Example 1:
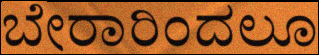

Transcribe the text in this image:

ಬೇರಾರಿಂದಲೂ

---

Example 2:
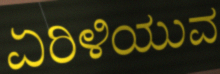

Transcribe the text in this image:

ಏರಿಳಿಯುವ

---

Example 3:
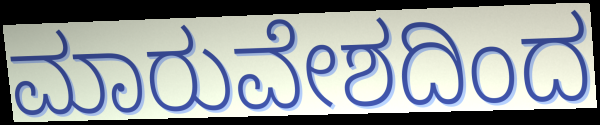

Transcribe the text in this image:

ಮಾರುವೇಶದಿಂದ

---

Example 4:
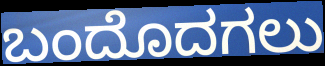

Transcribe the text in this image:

ಬಂದೊದಗಲು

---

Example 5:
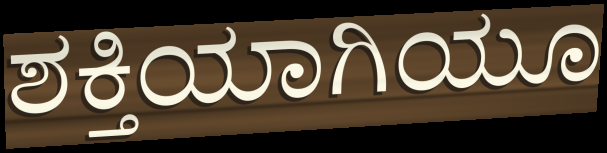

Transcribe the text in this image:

ಶಕ್ತಿಯಾಗಿಯೂ